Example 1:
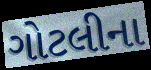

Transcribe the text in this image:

ગોટલીના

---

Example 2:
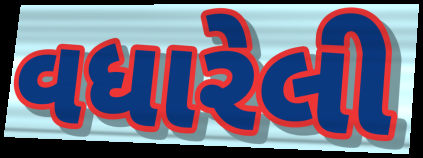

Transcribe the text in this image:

વધારેલી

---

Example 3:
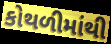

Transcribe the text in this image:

કોથળીમાંથી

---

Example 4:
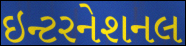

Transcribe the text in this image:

ઇન્ટરનેશનલ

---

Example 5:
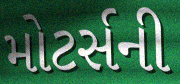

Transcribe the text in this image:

મોટર્સની